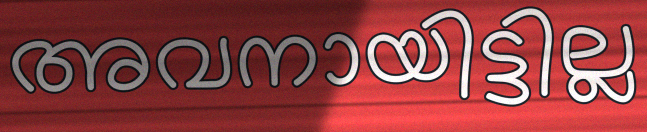
അവനായിട്ടില്ല